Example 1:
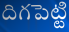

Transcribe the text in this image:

దిగపెట్టి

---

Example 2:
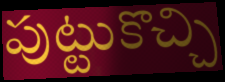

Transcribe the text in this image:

పుట్టుకొచ్చి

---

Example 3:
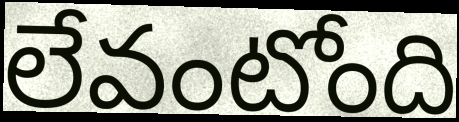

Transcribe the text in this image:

లేవంటోంది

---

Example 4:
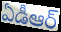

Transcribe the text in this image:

ఏడీఆర్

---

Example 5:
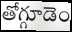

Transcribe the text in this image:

తోగ్గూడెం